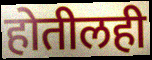
होतीलही